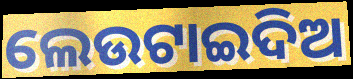
ଲେଉଟାଇଦିଅ